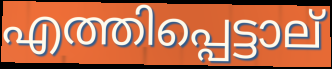
എത്തിപ്പെട്ടാല്